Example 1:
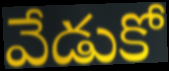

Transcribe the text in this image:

వేడుకో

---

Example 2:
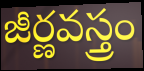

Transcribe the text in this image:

జీర్ణవస్త్రం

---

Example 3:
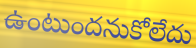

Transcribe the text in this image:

ఉంటుందనుకోలేదు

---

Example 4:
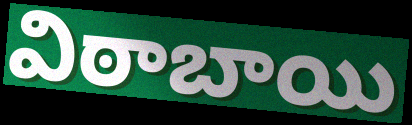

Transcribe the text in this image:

విఠాబాయి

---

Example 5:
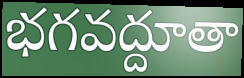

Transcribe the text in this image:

భగవద్దూతా